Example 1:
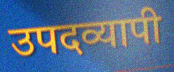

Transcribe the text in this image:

उपदव्यापी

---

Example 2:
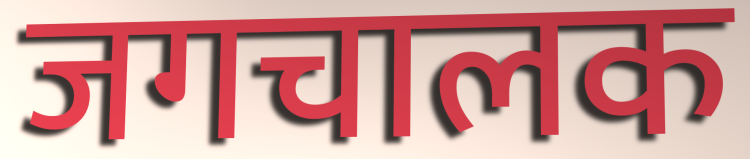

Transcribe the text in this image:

जगचालक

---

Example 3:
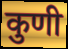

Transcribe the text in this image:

कुणी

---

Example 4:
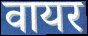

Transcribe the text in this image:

वायर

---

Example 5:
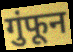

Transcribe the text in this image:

गुंफून